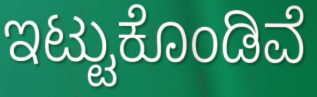
ಇಟ್ಟುಕೊಂಡಿವೆ